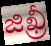
జిఖ్రీ